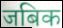
जबिक